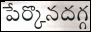
పేర్కొనదగ్గ